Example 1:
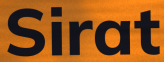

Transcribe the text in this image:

Sirat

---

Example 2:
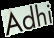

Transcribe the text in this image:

Adhi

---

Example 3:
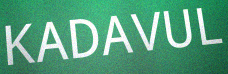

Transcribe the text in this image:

KADAVUL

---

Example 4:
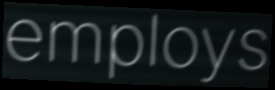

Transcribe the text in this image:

employs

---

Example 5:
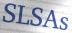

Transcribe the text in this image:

SLSAs